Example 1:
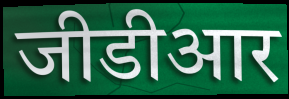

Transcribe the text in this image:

जीडीआर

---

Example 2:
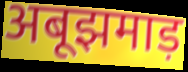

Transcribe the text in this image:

अबूझमाड़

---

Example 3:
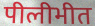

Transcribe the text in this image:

पीलीभीत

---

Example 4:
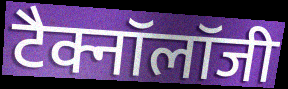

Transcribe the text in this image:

टैक्नॉलॉजी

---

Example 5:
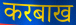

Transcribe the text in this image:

करबाख